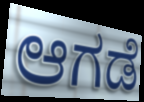
ಆಗಡೆ